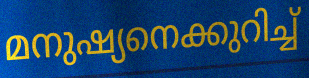
മനുഷ്യനെക്കുറിച്ച്